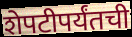
शेपटीपर्यंतची